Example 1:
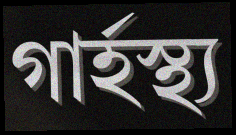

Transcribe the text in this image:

গার্হস্থ্য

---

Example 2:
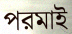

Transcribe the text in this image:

পরমাই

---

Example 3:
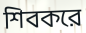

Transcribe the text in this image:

শিবকরে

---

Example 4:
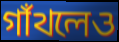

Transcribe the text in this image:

গাঁথলেও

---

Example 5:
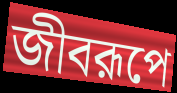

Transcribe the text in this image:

জীবরূপে